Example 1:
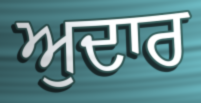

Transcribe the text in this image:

ਅੁਦਾਰ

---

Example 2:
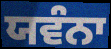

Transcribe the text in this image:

ਯਵੰਨਾ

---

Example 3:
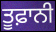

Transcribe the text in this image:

ਤੂਫ਼ਾਨੀ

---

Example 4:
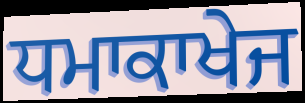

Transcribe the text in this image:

ਧਮਾਕਾਖੇਜ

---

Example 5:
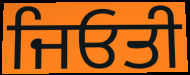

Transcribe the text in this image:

ਜਿਓਤੀ